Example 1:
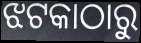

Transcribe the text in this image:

ଝଟକାଠାରୁ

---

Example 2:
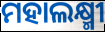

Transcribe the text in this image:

ମହାଲକ୍ଷ୍ମୀ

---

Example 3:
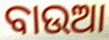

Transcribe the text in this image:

ବାଉଆ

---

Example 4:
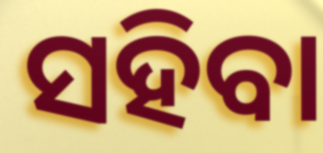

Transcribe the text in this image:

ସହିବା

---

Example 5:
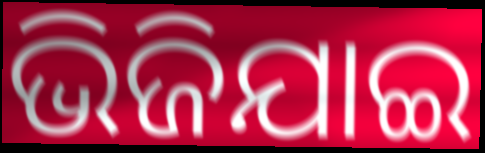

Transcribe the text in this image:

ଭିଜିଯାଇ